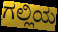
ಗಲ್ಲಿಯ